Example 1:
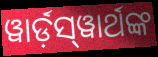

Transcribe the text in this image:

ୱାର୍ଡ଼ସ୍‌ୱାର୍ଥଙ୍କ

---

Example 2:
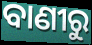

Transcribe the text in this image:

ବାଣୀରୁ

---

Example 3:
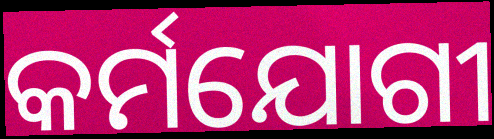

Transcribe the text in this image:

କର୍ମଯୋଗୀ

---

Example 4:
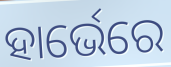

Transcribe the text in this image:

ହାର୍ଭେରେ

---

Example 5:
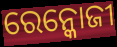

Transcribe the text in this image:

ରେନ୍କୋଜୀ